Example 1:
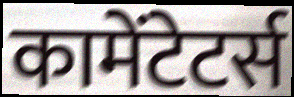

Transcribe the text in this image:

कामेंटेटर्स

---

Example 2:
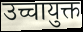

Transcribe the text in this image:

उच्चायुक्त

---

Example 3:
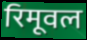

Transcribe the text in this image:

रिमूवल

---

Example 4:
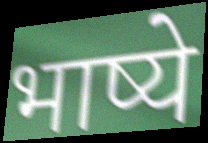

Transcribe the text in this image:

भाष्ये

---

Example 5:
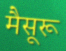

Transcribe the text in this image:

मैसूरू